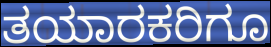
ತಯಾರಕರಿಗೂ